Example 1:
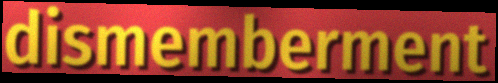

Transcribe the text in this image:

dismemberment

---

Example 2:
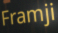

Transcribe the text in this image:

Framji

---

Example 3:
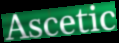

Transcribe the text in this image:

Ascetic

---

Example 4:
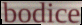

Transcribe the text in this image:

bodice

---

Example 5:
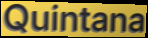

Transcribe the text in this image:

Quintana